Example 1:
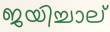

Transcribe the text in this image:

ജയിച്ചാല്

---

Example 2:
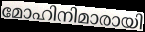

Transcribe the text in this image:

മോഹിനിമാരായി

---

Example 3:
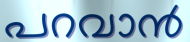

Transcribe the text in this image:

പറവാൻ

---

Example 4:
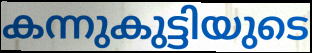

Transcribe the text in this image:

കന്നുകുട്ടിയുടെ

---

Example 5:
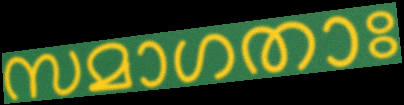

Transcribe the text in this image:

സമാഗതാഃ